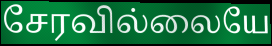
சேரவில்லையே